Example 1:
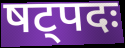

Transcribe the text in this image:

षट्पदः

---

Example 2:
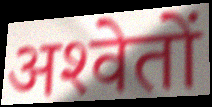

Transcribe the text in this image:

अश्‍वेतों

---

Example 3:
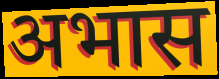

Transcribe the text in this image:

अभास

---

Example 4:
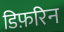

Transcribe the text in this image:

डिफ़रिन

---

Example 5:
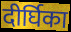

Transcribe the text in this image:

दीर्घिका